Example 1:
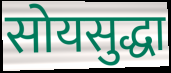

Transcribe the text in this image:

सोयसुद्धा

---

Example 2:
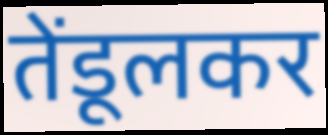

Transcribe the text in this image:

तेंडूलकर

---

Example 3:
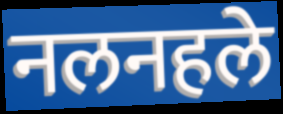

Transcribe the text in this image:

नलनहले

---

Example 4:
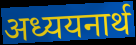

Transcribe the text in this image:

अध्ययनार्थ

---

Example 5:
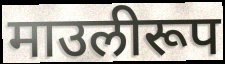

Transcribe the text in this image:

माउलीरूप